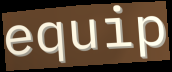
equip